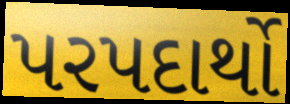
પરપદાર્થો